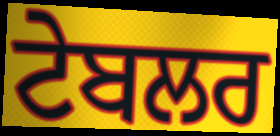
ਟੇਬਲਰ